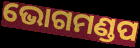
ଭୋଗମଣ୍ଡପ